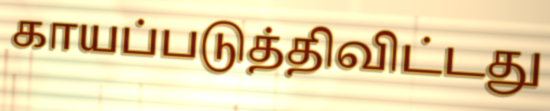
காயப்படுத்திவிட்டது